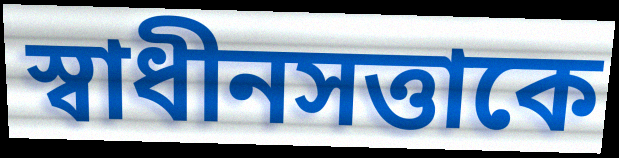
স্বাধীনসত্তাকে